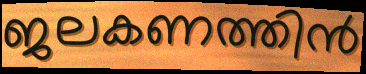
ജലകണത്തിൻ